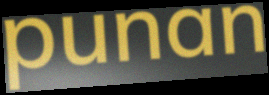
punan